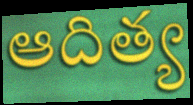
ఆదిత్య